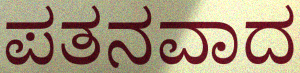
ಪತನವಾದ